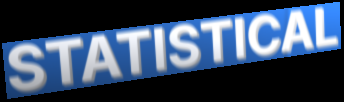
STATISTICAL